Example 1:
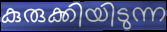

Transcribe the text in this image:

കുരുക്കിയിടുന്ന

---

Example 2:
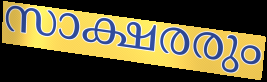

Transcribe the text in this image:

സാക്ഷരരും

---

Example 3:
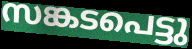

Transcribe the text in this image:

സങ്കടപെട്ടു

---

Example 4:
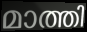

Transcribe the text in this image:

മാത്തി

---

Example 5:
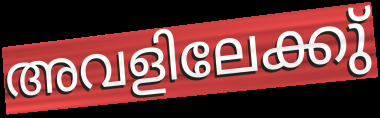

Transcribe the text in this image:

അവളിലേക്കു്